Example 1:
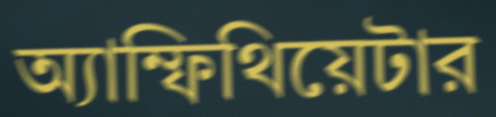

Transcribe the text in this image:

অ্যাম্ফিথিয়েটার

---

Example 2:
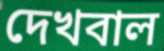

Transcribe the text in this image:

দেখবাল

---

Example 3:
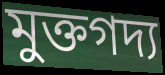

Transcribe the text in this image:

মুক্তগদ্য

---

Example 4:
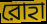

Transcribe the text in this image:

রোহা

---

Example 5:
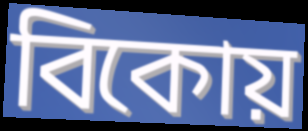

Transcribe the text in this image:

বিকোয়